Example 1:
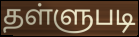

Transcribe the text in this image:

தள்ளுபடி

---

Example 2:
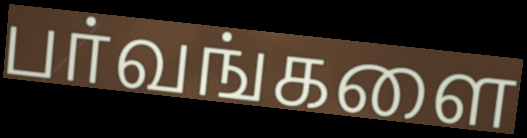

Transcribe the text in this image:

பர்வங்களை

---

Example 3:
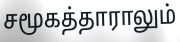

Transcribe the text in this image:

சமூகத்தாராலும்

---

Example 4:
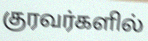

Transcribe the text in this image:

குரவர்களில்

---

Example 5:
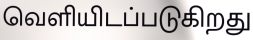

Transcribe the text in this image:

வெளியிடப்படுகிறது